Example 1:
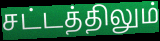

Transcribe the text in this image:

சட்டத்திலும்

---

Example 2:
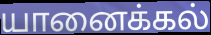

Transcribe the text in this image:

யானைக்கல்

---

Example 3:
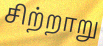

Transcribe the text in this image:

சிற்றாறு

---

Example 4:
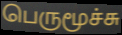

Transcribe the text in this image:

பெருமூச்சு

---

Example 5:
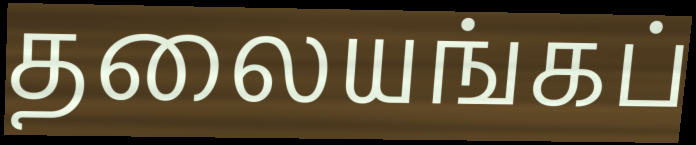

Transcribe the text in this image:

தலையங்கப்